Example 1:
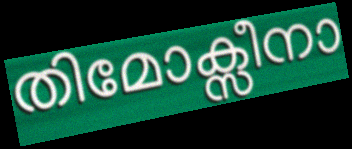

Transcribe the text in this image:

തിമോക്സീനാ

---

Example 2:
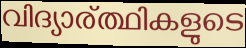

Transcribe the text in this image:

വിദ്യാര്ത്ഥികളുടെ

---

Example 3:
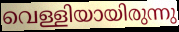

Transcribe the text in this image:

വെള്ളിയായിരുന്നു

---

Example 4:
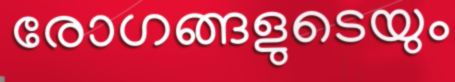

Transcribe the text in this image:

രോഗങ്ങളുടെയും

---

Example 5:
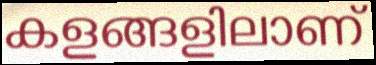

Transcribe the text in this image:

കളങ്ങളിലാണ്